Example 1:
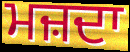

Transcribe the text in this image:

ਮਜ਼ਦਾ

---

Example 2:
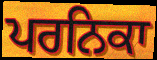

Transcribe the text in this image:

ਪਰਨਿਕਾ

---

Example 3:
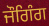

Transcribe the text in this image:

ਜੌਗਿੰਗ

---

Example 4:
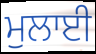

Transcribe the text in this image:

ਮੁਲਾਈ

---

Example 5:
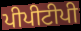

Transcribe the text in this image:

ਪੀਪੀਟੀਪੀ